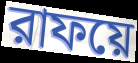
রাফয়ে